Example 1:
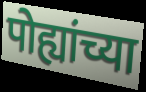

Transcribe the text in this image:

पोह्यांच्या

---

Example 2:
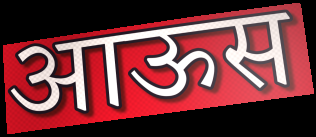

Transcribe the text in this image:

आऊस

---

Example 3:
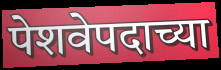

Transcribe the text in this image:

पेशवेपदाच्या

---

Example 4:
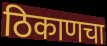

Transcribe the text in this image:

ठिकाणचा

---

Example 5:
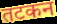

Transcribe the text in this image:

तटकन